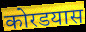
कोरडयास